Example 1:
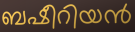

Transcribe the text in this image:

ബഷീറിയൻ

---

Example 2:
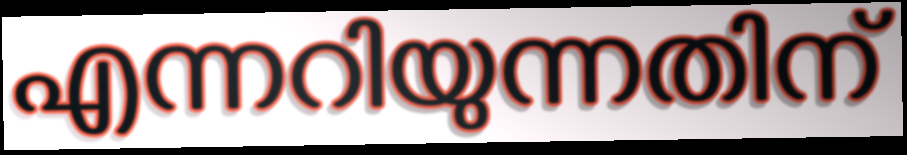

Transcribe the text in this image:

എന്നറിയുന്നതിന്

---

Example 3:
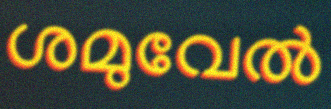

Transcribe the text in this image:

ശമുവേൽ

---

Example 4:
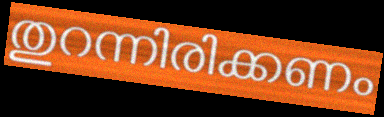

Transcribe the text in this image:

തുറന്നിരിക്കണം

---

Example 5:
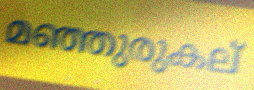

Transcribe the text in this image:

മഞ്ഞുരുകല്